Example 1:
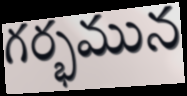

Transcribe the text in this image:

గర్భమున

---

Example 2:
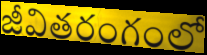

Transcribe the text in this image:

జీవితరంగంలో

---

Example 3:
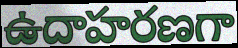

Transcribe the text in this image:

ఉదాహరణగా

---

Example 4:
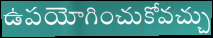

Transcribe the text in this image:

ఉపయోగించుకోవచ్చు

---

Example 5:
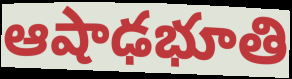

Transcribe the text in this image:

ఆషాఢభూతి